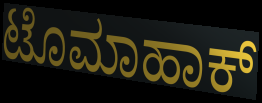
ಟೊಮಾಹಾಕ್